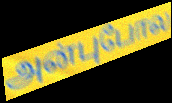
அன்புபோல